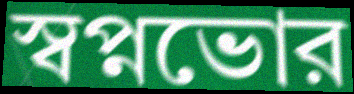
স্বপ্নভোর